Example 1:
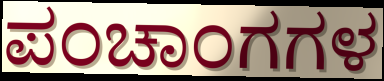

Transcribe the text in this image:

ಪಂಚಾಂಗಗಳ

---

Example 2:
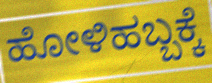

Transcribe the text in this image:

ಹೋಳಿಹಬ್ಬಕ್ಕೆ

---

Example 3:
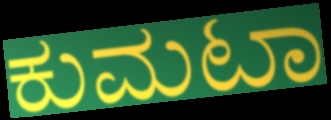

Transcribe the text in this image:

ಕುಮಟಾ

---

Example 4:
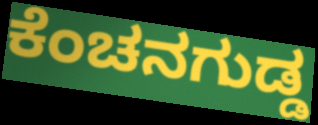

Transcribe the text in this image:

ಕೆಂಚನಗುಡ್ಡ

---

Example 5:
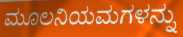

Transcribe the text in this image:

ಮೂಲನಿಯಮಗಳನ್ನು